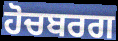
ਹੋਚਬਰਗ